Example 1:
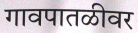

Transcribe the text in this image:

गावपातळीवर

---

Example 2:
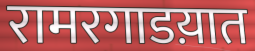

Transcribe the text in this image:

रामरगाडय़ात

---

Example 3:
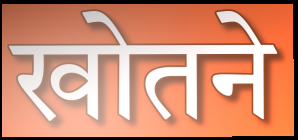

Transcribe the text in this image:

खोतने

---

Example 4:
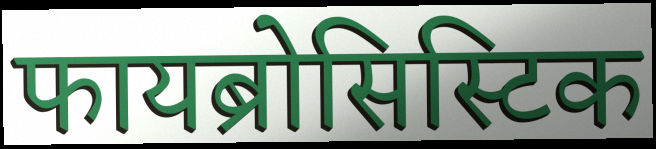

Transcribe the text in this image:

फायब्रोसिस्टिक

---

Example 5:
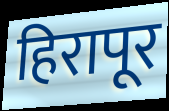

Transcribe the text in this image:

हिरापूर